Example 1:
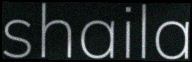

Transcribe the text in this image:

shaila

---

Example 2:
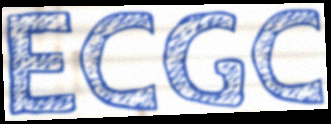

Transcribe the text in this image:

ECGC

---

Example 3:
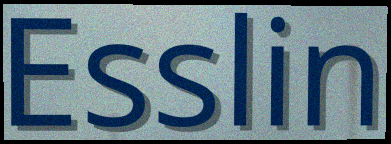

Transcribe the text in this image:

Esslin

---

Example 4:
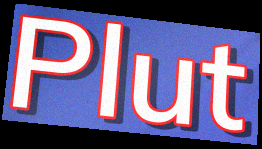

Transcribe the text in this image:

Plut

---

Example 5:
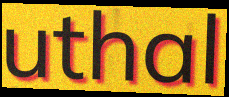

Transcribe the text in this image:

uthal